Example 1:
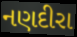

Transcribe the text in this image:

નણદીરા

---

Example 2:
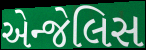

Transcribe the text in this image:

એન્જેલિસ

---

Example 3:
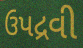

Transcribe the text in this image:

ઉપદ્રવી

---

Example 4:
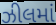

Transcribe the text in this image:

ઝીલમાં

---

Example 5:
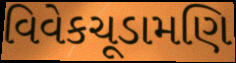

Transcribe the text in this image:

વિવેકચૂડામણિ